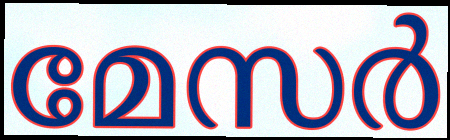
മേസർ